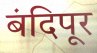
बंदिपूर